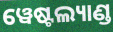
ୱେଷ୍ଟଲ୍ୟାଣ୍ଡ